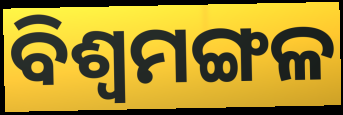
ବିଶ୍ୱମଙ୍ଗଳ